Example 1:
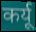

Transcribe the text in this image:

कर्यू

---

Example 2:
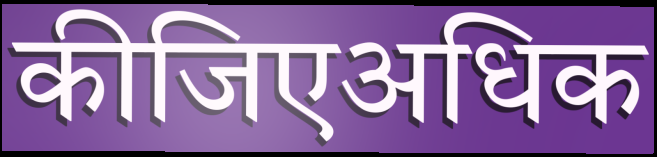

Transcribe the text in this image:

कीजिएअधिक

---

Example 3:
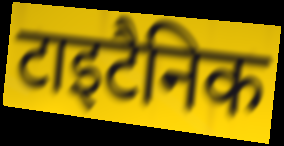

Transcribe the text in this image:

टाइटैनिक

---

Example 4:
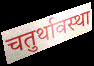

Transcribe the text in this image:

चतुर्थावस्था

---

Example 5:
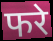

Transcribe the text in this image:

फरे